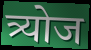
त्र्योज